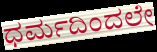
ಧರ್ಮದಿಂದಲೇ